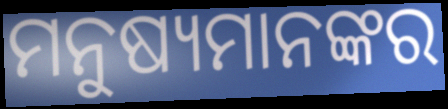
ମନୁଷ୍ଯମାନଙ୍କର